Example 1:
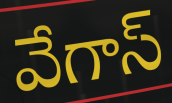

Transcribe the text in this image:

వేగాస్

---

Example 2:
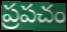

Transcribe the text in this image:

ప్రపచం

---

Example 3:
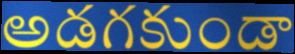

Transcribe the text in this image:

అడగకుండా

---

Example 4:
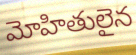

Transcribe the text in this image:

మోహితులైన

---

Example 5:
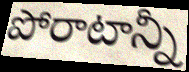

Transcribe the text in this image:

పోరాటాన్నీ